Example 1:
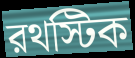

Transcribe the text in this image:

রথস্টিক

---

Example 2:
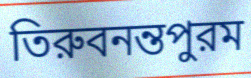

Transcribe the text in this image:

তিরুবনন্তপুরম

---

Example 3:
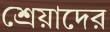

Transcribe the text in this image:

শ্রেয়াদের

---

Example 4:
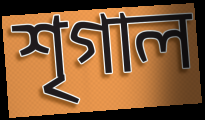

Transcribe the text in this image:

শৃগাল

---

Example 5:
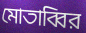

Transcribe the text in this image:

মোতাব্বির